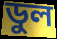
ডুল